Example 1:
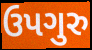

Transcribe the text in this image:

ઉપગુરુ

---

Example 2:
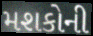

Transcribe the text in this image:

મશકોની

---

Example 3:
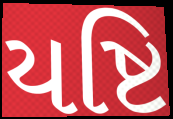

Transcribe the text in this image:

યષ્ટિ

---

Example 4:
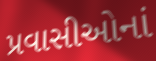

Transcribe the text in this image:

પ્રવાસીઓનાં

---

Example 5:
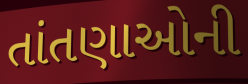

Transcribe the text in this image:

તાંતણાઓની